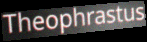
Theophrastus